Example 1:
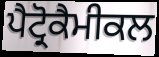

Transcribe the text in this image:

ਪੈਟ੍ਰੋਕੈਮੀਕਲ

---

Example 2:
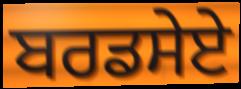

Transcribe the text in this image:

ਬਰਡਸੇਏ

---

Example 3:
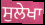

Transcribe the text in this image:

ਸੁਲੇਖਾ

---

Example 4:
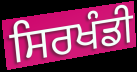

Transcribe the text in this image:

ਸਿਰਖੰਡੀ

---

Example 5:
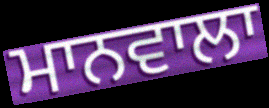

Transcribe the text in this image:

ਮਾਨਵਾਲਾ